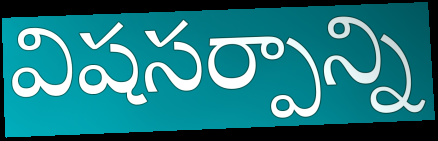
విషసర్పాన్ని